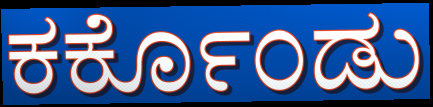
ಕರ್ಕೊಂಡು